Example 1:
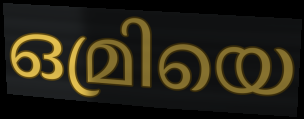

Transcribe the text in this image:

ഒമ്രിയെ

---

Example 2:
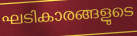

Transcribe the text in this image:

ഘടികാരങ്ങളുടെ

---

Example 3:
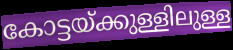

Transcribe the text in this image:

കോട്ടയ്ക്കുള്ളിലുള്ള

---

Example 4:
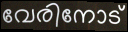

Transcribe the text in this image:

വേരിനോട്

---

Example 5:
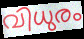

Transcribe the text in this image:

വിധുരം